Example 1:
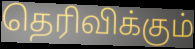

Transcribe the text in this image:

தெரிவிக்கும்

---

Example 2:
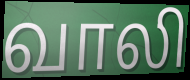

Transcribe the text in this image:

வாலி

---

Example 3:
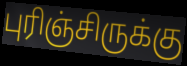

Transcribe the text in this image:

புரிஞ்சிருக்கு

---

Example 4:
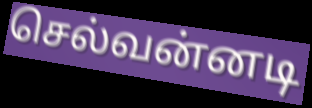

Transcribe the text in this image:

செல்வன்னடி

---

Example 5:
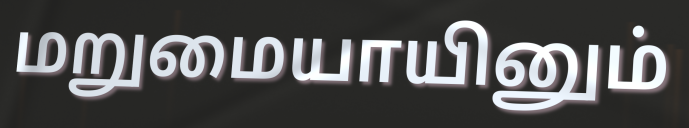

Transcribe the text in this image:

மறுமையாயினும்